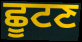
ਛੂਟਣ